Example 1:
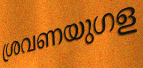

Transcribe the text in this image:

ശ്രവണയുഗള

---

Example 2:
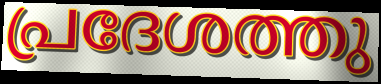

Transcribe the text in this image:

പ്രദേശത്തു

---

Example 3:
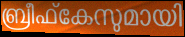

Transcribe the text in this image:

ബ്രീഫ്കേസുമായി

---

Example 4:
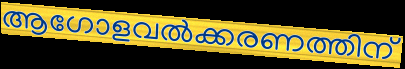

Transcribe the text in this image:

ആഗോളവൽക്കരണത്തിന്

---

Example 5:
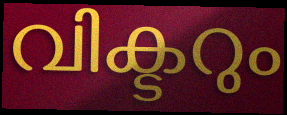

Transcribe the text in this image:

വിക്ടറും